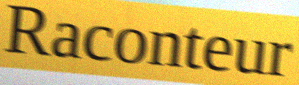
Raconteur